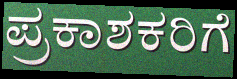
ಪ್ರಕಾಶಕರಿಗೆ